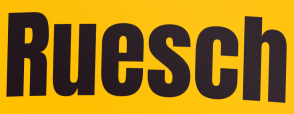
Ruesch